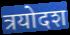
त्रयोदश